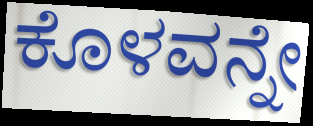
ಕೊಳವನ್ನೇ